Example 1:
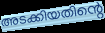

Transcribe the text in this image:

അടക്കിയതിന്റെ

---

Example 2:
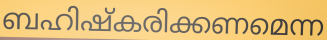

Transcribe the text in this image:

ബഹിഷ്കരിക്കണമെന്ന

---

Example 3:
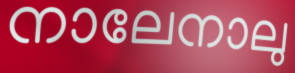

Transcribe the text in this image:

നാലേനാലു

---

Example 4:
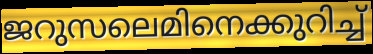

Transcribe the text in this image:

ജറുസലെമിനെക്കുറിച്ച്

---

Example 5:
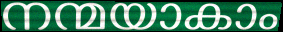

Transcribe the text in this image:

നന്മയാകാം